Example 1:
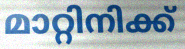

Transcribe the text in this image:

മാറ്റിനിക്ക്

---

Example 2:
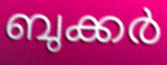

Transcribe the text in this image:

ബുക്കർ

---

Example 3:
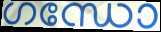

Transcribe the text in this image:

ഗന്ധോ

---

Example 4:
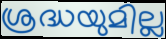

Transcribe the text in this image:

ശ്രദ്ധയുമില്ല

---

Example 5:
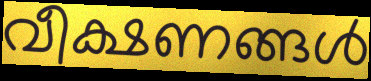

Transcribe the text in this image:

വീക്ഷണങ്ങൾ